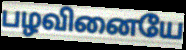
பழவினையே